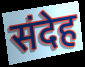
संदेह